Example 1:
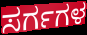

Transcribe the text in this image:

ಸರ್ಗಗಳ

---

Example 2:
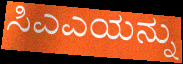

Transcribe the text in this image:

ಸಿಎಎಯನ್ನು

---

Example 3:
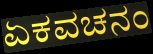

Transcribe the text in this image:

ಏಕವಚನಂ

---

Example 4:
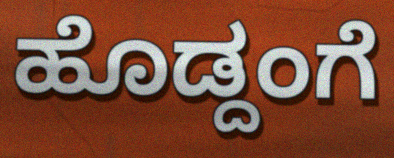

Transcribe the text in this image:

ಹೊಡ್ದಂಗೆ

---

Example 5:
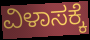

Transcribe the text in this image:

ವಿಳಾಸಕ್ಕೆ